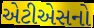
એટીએસનો